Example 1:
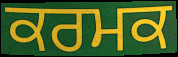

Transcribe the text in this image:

ਕਰਮਕ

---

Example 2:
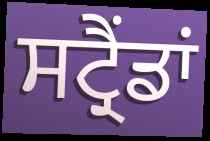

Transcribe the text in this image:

ਸਟ੍ਰੈਂਡਾਂ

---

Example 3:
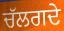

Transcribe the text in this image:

ਚੱਲਗਦੇ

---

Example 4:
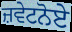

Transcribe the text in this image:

ਜ਼ਵੇਟਨੋਏ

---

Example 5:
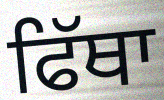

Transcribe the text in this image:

ਫਿੱਥਾ